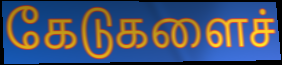
கேடுகளைச்